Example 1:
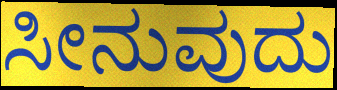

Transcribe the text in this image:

ಸೀನುವುದು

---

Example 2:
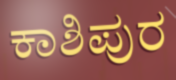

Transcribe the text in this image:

ಕಾಶಿಪುರ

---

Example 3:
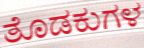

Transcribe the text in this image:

ತೊಡಕುಗಳ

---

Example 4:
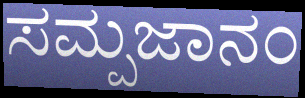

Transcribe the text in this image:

ಸಮ್ಪಜಾನಂ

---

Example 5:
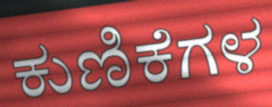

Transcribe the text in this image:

ಕುಣಿಕೆಗಳ